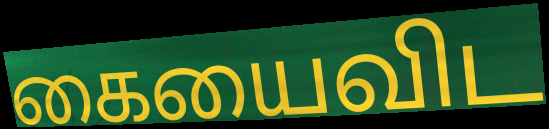
கையைவிட